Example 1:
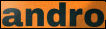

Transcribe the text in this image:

andro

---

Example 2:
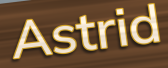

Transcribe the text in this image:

Astrid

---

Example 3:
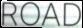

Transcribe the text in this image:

ROAD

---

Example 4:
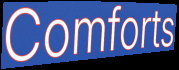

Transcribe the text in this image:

Comforts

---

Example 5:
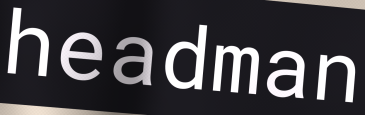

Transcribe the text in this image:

headman